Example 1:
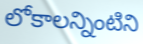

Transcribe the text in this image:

లోకాలన్నింటిని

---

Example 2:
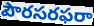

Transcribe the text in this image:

పౌరసరఫరా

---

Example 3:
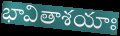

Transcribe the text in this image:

భావితాశయాః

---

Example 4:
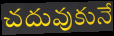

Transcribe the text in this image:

చదువుకునే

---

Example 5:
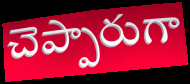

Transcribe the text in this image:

చెప్పారుగా